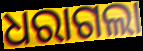
ଧରାଗଲା